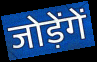
जोड़ेंगें